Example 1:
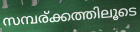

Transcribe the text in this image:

സമ്പര്ക്കത്തിലൂടെ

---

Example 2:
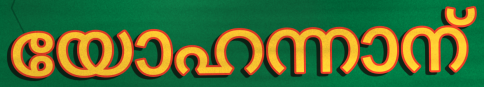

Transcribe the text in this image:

യോഹന്നാന്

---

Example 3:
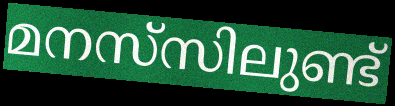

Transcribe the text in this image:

മനസ്‌സിലുണ്ട്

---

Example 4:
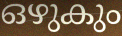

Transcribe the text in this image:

ഒഴുകും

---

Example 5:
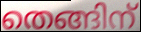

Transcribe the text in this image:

തെങ്ങിന്